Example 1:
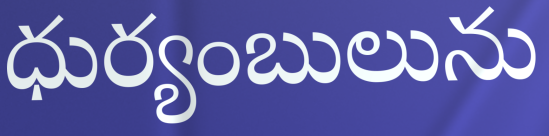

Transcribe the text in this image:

ధుర్యంబులును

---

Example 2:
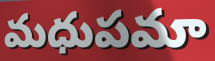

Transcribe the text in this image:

మధుపమా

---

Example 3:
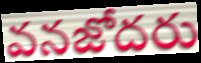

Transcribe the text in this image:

వనజోదరు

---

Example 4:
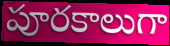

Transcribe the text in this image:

పూరకాలుగా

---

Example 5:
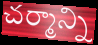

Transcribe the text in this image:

చర్మాన్ని